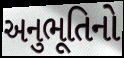
અનુભૂતિનો